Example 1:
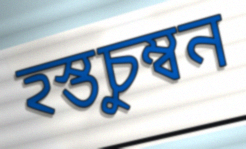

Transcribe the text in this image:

হস্তচুম্বন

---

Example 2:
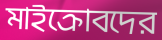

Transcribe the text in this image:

মাইক্রোবদের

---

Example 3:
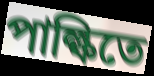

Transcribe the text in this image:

পাল্কিতে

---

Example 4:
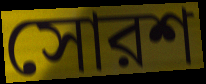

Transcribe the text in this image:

সোরশ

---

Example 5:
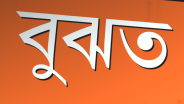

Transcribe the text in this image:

বুঝত